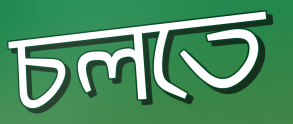
চলতে